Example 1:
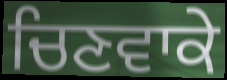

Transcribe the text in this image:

ਚਿਣਵਾਕੇ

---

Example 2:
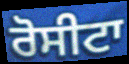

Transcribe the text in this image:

ਰੋਸੀਟਾ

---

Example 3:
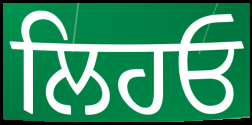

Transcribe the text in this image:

ਲਿਹਓ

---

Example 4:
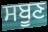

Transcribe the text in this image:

ਸਬੂਣ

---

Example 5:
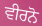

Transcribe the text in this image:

ਵੀਰਨੋ